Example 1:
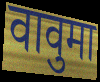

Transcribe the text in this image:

वावुमा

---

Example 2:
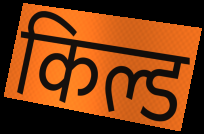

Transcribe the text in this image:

किल्ड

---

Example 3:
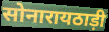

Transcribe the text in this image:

सोनारायठाड़ी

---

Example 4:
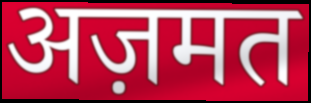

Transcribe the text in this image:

अज़मत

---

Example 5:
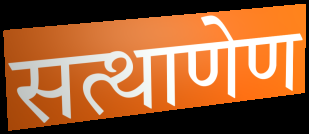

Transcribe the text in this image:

सत्थाणेण